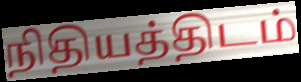
நிதியத்திடம்